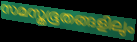
സമസ്തഭൂതങ്ങളിലും